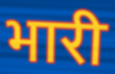
भारी